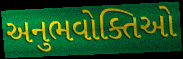
અનુભવોક્તિઓ